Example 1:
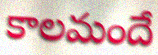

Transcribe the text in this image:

కాలమందే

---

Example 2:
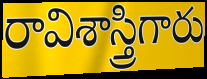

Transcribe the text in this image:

రావిశాస్త్రిగారు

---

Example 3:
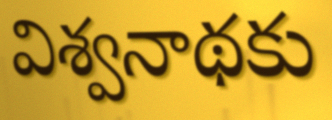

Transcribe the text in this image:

విశ్వనాథకు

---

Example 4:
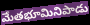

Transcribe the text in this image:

మేతభూమినిపాడు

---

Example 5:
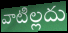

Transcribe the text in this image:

వాటిల్లదు